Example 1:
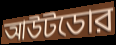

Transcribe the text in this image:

আউটডোর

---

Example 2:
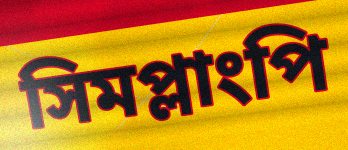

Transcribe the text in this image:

সিমপ্লাংপি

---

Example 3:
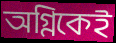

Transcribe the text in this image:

অগ্নিকেই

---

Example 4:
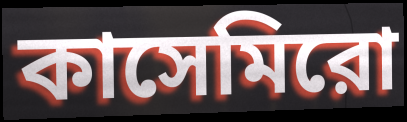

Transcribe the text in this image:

কাসেমিরো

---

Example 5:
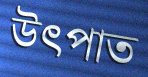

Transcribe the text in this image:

উৎপাত